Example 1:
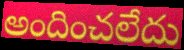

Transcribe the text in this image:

అందించలేదు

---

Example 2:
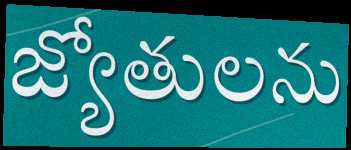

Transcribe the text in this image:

జ్యోతులను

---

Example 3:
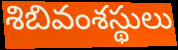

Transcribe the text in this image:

శిబివంశస్థులు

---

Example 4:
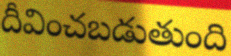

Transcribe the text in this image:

దీవించబడుతుంది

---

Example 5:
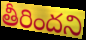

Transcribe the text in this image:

తీరిందని